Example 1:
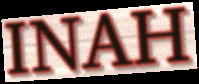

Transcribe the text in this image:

INAH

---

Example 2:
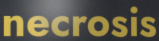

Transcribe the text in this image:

necrosis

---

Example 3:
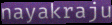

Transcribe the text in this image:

nayakraju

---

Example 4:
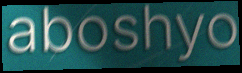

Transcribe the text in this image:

aboshyo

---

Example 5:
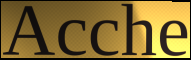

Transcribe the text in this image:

Acche